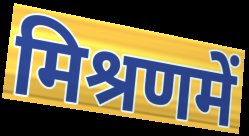
मिश्रणमें